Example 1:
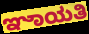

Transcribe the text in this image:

ಞಾಯತಿ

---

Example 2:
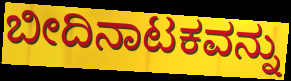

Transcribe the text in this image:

ಬೀದಿನಾಟಕವನ್ನು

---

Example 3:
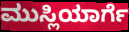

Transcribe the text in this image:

ಮುಸ್ಲಿಯಾರ್ಗೆ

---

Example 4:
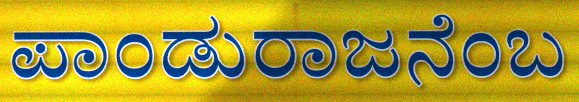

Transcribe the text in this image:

ಪಾಂಡುರಾಜನೆಂಬ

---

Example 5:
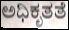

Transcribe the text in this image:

ಅಧಿಕೃತತೆ